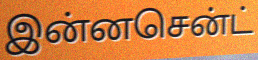
இன்னசென்ட்